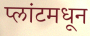
प्लांटमधून